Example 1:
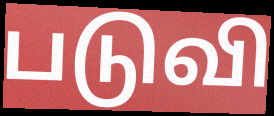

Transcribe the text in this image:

படுவி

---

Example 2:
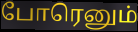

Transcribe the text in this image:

போரெனும்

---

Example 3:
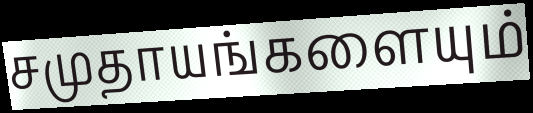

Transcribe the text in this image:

சமுதாயங்களையும்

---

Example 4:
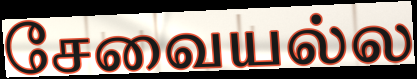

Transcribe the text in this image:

சேவையல்ல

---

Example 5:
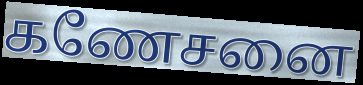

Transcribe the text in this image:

கணேசனை